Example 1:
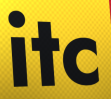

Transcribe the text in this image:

itc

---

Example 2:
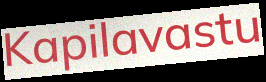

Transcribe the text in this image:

Kapilavastu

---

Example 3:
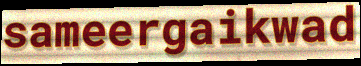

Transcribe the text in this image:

sameergaikwad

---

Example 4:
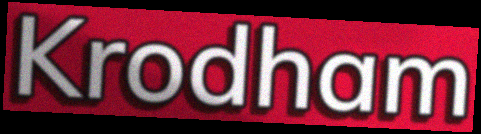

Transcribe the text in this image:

Krodham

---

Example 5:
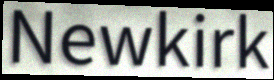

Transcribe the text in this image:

Newkirk